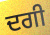
ਦਗੀ